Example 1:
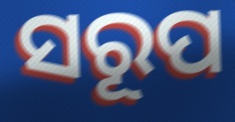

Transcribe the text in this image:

ସରୂପ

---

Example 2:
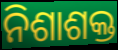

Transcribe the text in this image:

ନିଶାଶକ୍ତ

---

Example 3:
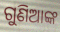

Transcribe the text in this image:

ଗୁଣିଆଙ୍କ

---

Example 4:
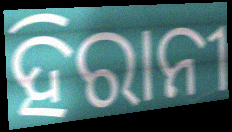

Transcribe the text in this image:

ହିରାନୀ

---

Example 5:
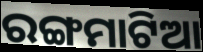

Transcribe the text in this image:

ରଙ୍ଗମାଟିଆ